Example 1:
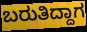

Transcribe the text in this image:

ಬರುತಿದ್ದಾಗ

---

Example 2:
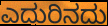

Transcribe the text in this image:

ಎದುರಿನದು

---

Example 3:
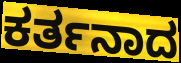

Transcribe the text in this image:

ಕರ್ತನಾದ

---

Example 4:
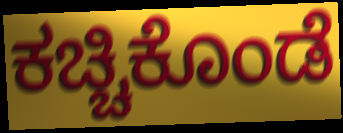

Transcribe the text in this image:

ಕಚ್ಚಿಕೊಂಡೆ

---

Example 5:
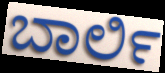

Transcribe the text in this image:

ಬಾರ್ಲಿ